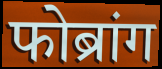
फोब्रांग